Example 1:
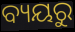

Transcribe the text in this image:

ବ୍ୟୟରୁ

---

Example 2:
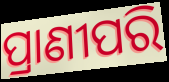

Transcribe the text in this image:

ପ୍ରାଣୀପରି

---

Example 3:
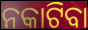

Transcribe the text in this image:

ନକାଟିବା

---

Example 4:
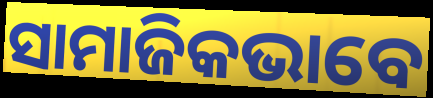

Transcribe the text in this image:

ସାମାଜିକଭାବେ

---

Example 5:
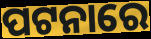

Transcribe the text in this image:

ପଟନାରେ